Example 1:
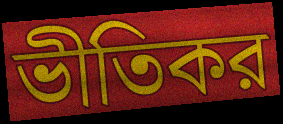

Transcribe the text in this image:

ভীতিকর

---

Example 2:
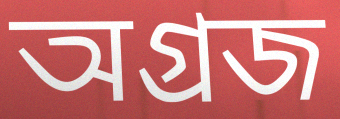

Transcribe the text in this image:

অগ্রজ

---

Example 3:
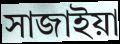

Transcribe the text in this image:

সাজাইয়া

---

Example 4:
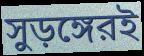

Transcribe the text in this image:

সুড়ঙ্গেরই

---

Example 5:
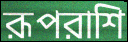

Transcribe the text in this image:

রূপরাশি